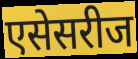
एसेसरीज